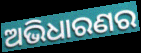
ଅଭିଧାରଣର